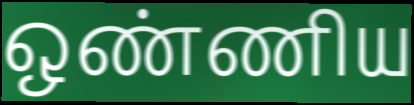
ஒண்ணிய